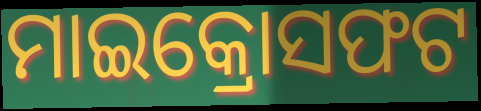
ମାଇକ୍ରୋସଫଟ